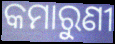
କମାରୁଣୀ